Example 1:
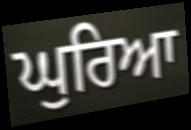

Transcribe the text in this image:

ਘੁਰਿਆ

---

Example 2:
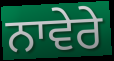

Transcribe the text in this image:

ਨਾਵੇਰੇ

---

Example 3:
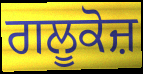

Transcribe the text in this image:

ਗਲੂਕੋਜ਼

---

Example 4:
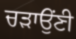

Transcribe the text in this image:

ਚੜਾਉਂਣੀ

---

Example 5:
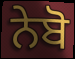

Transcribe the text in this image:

ਨੇਬੋ